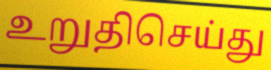
உறுதிசெய்து